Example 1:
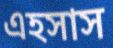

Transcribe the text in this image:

এহসাস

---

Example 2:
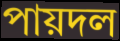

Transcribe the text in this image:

পায়দল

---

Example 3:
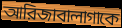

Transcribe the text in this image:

আরিজাবালাগাকে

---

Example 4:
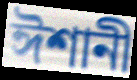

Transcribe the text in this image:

ঈশানী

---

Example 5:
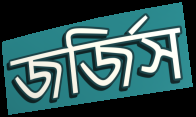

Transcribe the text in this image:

জর্জিস